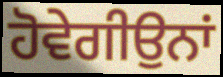
ਹੋਵੇਗੀਉਨਾਂ